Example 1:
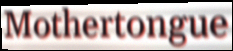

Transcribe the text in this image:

Mothertongue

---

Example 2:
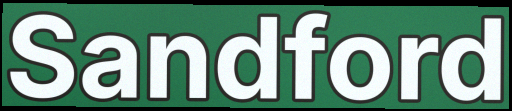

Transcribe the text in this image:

Sandford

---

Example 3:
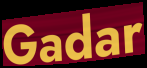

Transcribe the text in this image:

Gadar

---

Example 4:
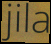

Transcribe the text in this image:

jila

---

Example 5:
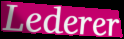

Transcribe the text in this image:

Lederer